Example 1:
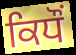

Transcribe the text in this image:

ਕਿਧੌਂ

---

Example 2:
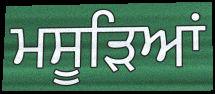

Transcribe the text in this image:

ਮਸੂੜਿਆਂ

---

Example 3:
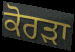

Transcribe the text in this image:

ਕੋਰੜਾ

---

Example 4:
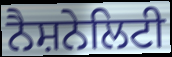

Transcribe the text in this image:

ਨੈਸ਼ਨੇਲਿਟੀ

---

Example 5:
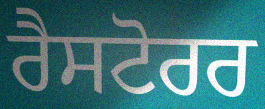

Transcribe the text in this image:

ਰੈਸਟੋਰਰ